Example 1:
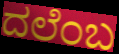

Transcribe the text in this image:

ದಲೆಂಬ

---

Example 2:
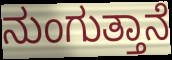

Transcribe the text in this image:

ನುಂಗುತ್ತಾನೆ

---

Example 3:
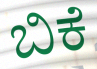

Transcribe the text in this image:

ಬಿಕೆ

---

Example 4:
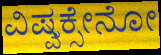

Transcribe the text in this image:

ವಿಷ್ವಕ್ಸೇನೋ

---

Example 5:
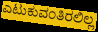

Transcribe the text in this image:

ಎಟುಕುವಂತಿರಲಿಲ್ಲ